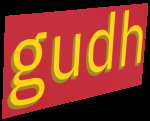
gudh